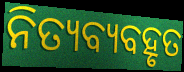
ନିତ୍ୟବ୍ୟବହୃତ